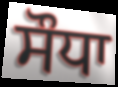
ਸੌਧਾ